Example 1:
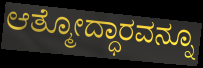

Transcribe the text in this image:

ಆತ್ಮೋದ್ಧಾರವನ್ನೂ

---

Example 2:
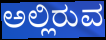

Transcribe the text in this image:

ಅಲ್ಲಿರುವ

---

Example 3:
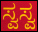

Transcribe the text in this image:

ಸ್ವಸ್ವ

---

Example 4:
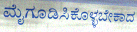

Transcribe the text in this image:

ಮೈಗೂಡಿಸಿಕೊಳ್ಳಬೇಕಾದ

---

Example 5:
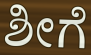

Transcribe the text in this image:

ಶೀಗೆ